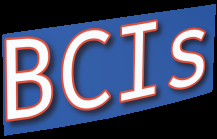
BCIs